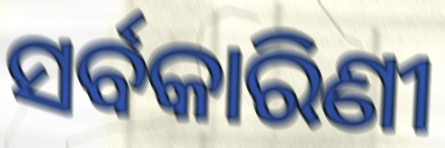
ସର୍ବକାରିଣୀ